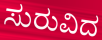
ಸುರುವಿದ